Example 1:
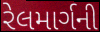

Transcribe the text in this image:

રેલમાર્ગની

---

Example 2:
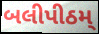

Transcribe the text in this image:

બલીપીઠમ્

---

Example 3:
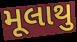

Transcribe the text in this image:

મૂલાથુ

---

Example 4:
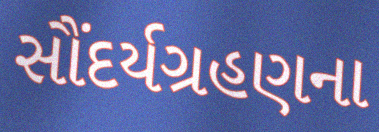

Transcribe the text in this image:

સૌંદર્યગ્રહણના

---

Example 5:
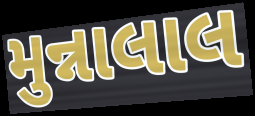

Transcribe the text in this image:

મુન્નાલાલ